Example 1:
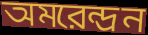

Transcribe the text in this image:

অমরেন্দ্রন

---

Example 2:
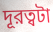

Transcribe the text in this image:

দূরত্বটা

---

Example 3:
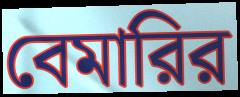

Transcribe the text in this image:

বেমারির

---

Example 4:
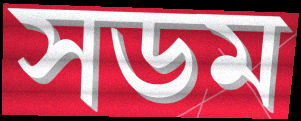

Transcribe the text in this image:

সডম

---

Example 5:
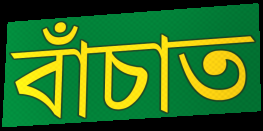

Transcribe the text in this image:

বাঁচাত